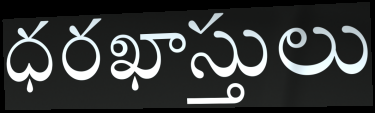
ధరఖాస్తులు